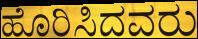
ಹೊರಿಸಿದವರು